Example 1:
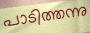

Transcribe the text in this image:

പാടിത്തന്നു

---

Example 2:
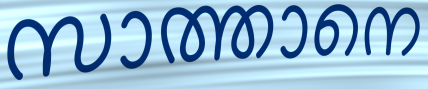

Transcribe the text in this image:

സാത്താനെ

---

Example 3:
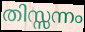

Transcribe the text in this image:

തിസ്സന്നം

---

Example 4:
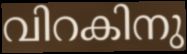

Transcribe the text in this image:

വിറകിനു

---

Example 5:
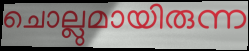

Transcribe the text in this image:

ചൊല്ലുമായിരുന്ന